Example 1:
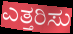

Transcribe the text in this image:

ಎತ್ತರಿಸು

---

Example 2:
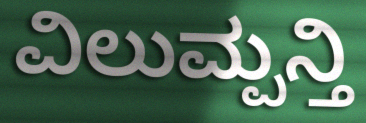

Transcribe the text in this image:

ವಿಲುಮ್ಪನ್ತಿ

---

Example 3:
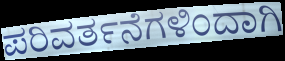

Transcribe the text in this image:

ಪರಿವರ್ತನೆಗಳಿಂದಾಗಿ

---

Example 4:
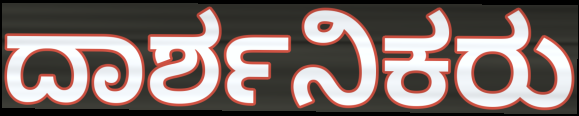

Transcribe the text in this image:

ದಾರ್ಶನಿಕರು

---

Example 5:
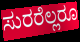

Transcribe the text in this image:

ಸುರರೆಲ್ಲರೂ